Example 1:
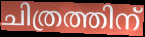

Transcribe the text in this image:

ചിത്രത്തിന്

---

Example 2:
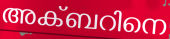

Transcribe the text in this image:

അക്ബറിനെ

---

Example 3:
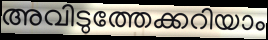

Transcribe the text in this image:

അവിടുത്തേക്കറിയാം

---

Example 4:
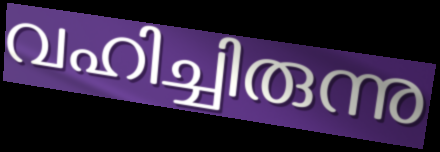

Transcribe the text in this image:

വഹിച്ചിരുന്നു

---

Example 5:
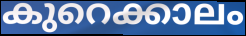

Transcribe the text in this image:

കുറെക്കാലം